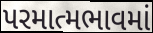
પરમાત્મભાવમાં